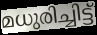
മധുരിച്ചിട്ട്